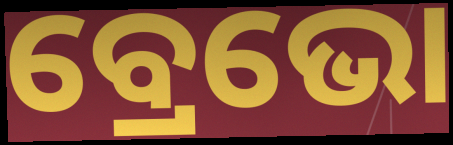
ବ୍ରେଭୋ